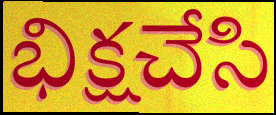
భిక్షచేసి